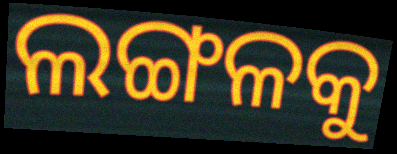
ଲଙ୍ଗଳକୁ